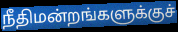
நீதிமன்றங்களுக்குச்